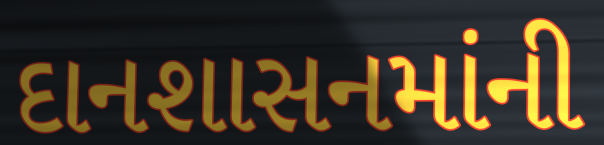
દાનશાસનમાંની